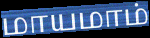
மாயமாம்